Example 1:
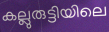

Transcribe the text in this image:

കല്ലുരുട്ടിയിലെ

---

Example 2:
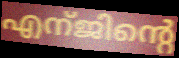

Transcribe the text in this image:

എന്ജിന്റെ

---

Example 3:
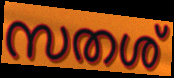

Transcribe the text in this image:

സതശ്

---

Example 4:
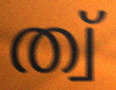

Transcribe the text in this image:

ത്വ്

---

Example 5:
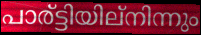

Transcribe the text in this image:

പാര്ട്ടിയില്നിന്നും